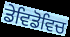
ਡੇਵਿਡੋਵਿਚ